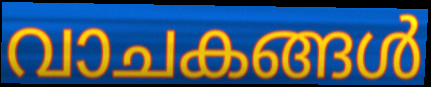
വാചകങ്ങൾ